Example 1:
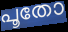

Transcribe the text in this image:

പൂതോ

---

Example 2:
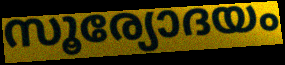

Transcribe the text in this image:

സൂര്യോദയം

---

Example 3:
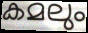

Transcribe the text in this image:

കമലും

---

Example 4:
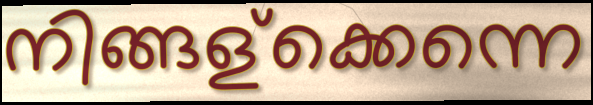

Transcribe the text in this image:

നിങ്ങള്ക്കെന്നെ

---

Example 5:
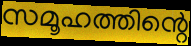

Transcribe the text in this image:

സമൂഹത്തിന്റെ